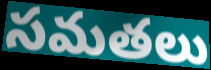
సమతలు